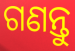
ଗଣନ୍ତୁ